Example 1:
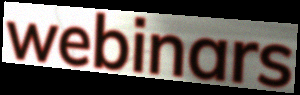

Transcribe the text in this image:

webinars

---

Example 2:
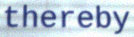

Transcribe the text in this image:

thereby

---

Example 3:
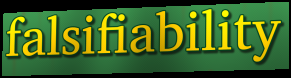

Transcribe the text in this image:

falsifiability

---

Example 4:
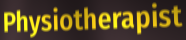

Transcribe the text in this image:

Physiotherapist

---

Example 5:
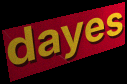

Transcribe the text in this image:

dayes